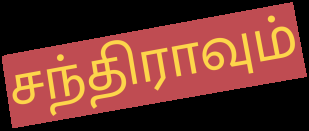
சந்திராவும்